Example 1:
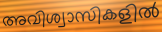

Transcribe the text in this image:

അവിശ്വാസികളിൽ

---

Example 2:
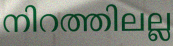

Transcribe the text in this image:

നിറത്തിലല്ല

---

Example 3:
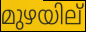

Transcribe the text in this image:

മുഴയില്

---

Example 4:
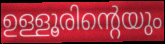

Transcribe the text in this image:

ഉള്ളൂരിന്റെയും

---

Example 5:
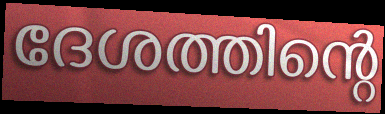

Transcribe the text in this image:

ദേശത്തിന്റെ